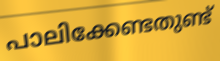
പാലിക്കേണ്ടതുണ്ട്